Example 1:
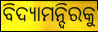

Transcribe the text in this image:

ବିଦ୍ୟାମନ୍ଦିରକୁ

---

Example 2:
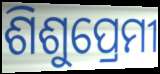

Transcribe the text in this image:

ଶିଶୁପ୍ରେମୀ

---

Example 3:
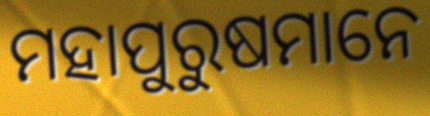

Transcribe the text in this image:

ମହାପୁରୁଷମାନେ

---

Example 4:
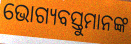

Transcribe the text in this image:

ଭୋଗ୍ୟବସ୍ତୁମାନଙ୍କ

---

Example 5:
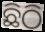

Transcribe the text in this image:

ଛିଠି